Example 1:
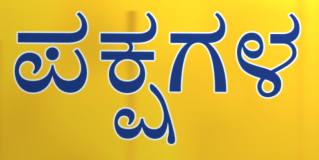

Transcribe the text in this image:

ಪಕ್ಷಗಳ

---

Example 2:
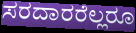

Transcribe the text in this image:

ಸರದಾರರೆಲ್ಲರೂ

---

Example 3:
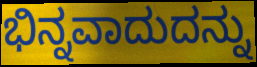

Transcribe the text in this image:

ಭಿನ್ನವಾದುದನ್ನು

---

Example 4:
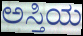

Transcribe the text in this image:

ಅಸ್ತಿಯ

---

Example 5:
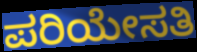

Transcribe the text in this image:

ಪರಿಯೇಸತಿ